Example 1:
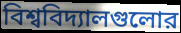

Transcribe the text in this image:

বিশ্ববিদ্যালগুলোর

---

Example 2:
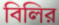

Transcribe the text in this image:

বিলির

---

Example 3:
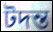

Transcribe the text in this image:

টদন্ত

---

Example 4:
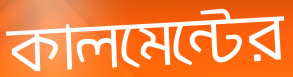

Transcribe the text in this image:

কালমেন্টের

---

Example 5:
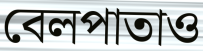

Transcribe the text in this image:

বেলপাতাও